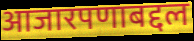
आजारपणाबद्दल